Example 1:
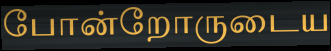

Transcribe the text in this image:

போன்றோருடைய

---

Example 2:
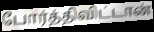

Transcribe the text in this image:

போர்த்திவிட்டான்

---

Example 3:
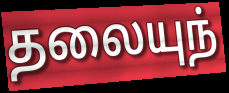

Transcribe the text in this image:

தலையுந்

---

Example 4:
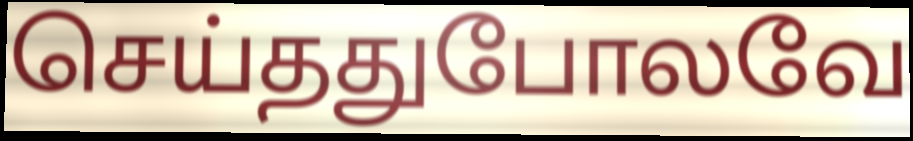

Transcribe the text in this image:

செய்ததுபோலவே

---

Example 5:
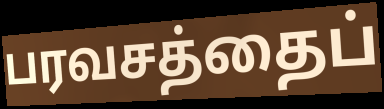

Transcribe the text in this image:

பரவசத்தைப்